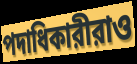
পদাধিকারীরাও